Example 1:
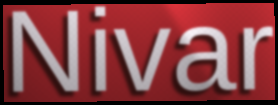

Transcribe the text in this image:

Nivar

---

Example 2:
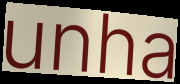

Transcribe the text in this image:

unha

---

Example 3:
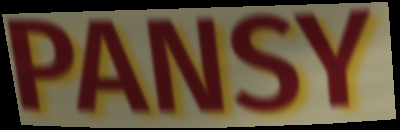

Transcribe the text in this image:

PANSY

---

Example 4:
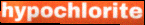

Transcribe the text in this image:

hypochlorite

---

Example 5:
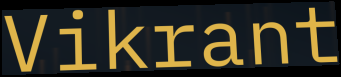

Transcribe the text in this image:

Vikrant